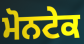
ਮੋਨਟੇਕ